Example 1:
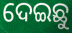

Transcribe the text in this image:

ଦେଇଛୁ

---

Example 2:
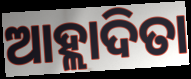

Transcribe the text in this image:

ଆହ୍ଲାଦିତା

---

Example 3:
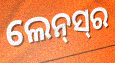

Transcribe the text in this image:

ଲେନ୍‌ସ୍‍ର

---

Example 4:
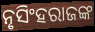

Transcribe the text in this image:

ନୃସିଂହରାଜଙ୍କ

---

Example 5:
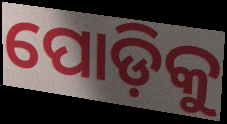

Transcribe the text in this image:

ପୋଡ଼ିକୁ